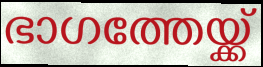
ഭാഗത്തേയ്ക്ക്